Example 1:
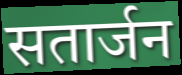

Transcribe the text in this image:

सतार्जन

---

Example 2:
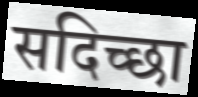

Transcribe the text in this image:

सदिच्छा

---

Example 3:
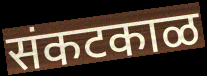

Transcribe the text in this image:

संकटकाळ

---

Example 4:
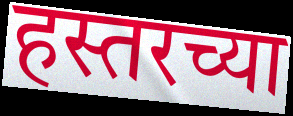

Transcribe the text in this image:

हस्तरच्या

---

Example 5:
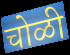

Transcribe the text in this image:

चोळी